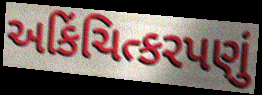
અકિંચિત્કરપણું